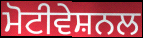
ਮੋਟੀਵੇਸ਼ਨਲ